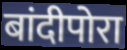
बांदीपोरा